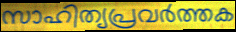
സാഹിത്യപ്രവർത്തക